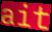
ait